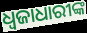
ଧ୍ଵଜାଧାରୀଙ୍କ